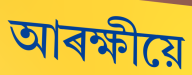
আৰক্ষীয়ে